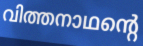
വിത്തനാഥന്റെ